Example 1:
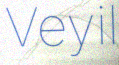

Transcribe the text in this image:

Veyil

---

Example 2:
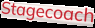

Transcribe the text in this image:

Stagecoach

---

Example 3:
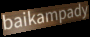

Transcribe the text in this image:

baikampady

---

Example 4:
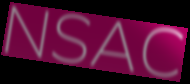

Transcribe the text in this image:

NSAC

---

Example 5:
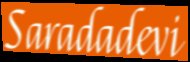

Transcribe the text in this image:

Saradadevi